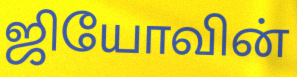
ஜியோவின்